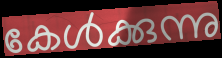
കേൾക്കുന്നു